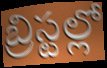
బ్రిస్టల్లో